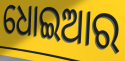
ଧୋଇଆର